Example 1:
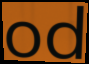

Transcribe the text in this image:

od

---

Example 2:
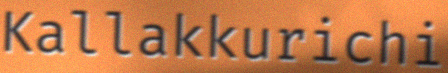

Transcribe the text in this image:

Kallakkurichi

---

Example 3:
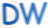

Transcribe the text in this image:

DW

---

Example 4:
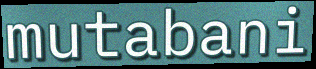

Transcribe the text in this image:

mutabani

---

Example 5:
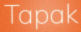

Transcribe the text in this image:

Tapak